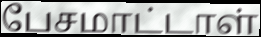
பேசமாட்டாள்